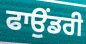
ਫਾਉਂਡਰੀ